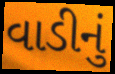
વાડીનું